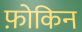
फ़ोकिन